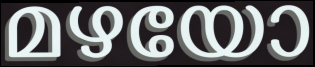
മഴയോ